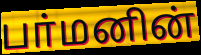
பர்மனின்